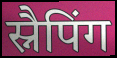
स्नैपिंग